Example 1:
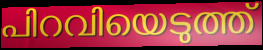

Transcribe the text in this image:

പിറവിയെടുത്ത്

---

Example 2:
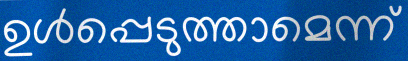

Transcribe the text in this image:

ഉൾപ്പെടുത്താമെന്ന്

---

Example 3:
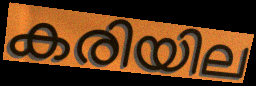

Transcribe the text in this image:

കരിയില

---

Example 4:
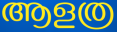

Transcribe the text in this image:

ആളത്ര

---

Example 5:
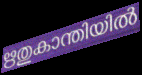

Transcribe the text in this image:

ഋതുകാന്തിയിൽ